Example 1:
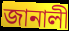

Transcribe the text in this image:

জানালী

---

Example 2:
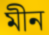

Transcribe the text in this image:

মীন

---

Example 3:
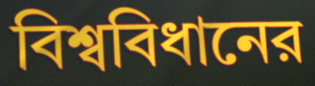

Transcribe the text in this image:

বিশ্ববিধানের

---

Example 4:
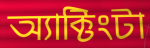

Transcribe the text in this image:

অ্যাক্টিংটা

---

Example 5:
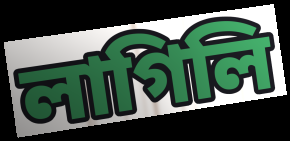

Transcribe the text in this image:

লাগিলি